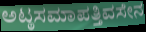
ಅಟ್ಠಸಮಾಪತ್ತಿವಸೇನ